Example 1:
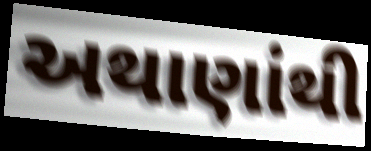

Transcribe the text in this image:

અથાણાંથી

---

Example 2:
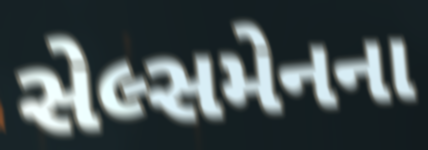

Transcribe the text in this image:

સેલ્સમેનના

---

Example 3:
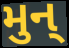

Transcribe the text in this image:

મુન્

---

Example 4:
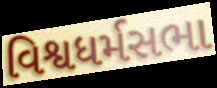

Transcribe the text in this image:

વિશ્વધર્મસભા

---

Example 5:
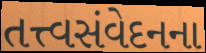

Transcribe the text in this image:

તત્ત્વસંવેદનના